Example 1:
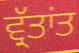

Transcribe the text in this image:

ਵ੍ਰੱਤਾਂਤ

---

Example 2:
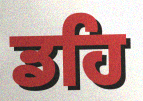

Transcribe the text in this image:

ਡਹਿ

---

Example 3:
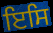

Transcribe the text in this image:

ਇਸਿ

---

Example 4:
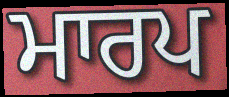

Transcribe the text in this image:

ਮਾਰਪ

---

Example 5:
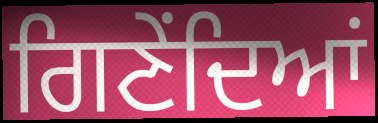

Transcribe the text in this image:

ਗਿਣੇਂਦਿਆਂ